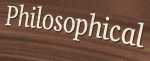
Philosophical